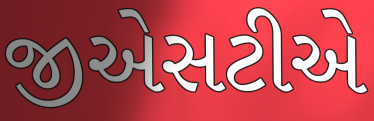
જીએસટીએ